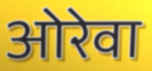
ओरेवा